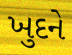
ખુદને